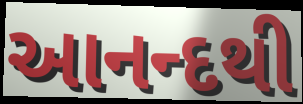
આનન્દથી